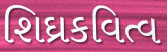
શિઘ્રકવિત્વ